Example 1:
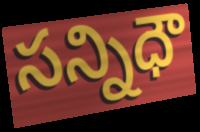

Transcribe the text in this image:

సన్నిధౌ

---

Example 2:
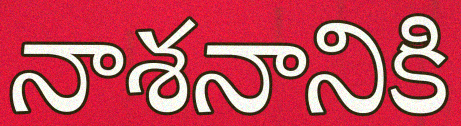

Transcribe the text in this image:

నాశనానికి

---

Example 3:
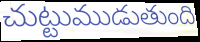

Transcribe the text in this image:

చుట్టుముడుతుంది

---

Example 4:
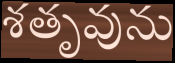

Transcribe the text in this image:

శతృవును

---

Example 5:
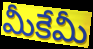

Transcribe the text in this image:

మీకేమీ